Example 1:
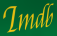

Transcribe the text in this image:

Imdb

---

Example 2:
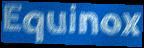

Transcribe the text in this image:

Equinox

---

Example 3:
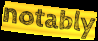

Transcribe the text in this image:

notably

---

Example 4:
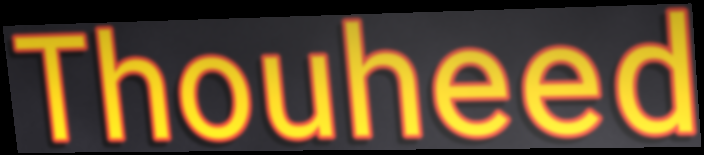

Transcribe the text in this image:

Thouheed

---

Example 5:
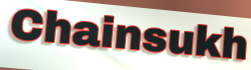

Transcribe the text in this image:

Chainsukh